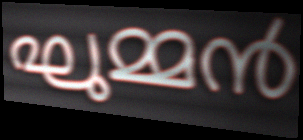
ഘുമ്മൻ